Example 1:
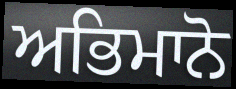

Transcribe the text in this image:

ਅਭਿਮਾਨੋ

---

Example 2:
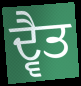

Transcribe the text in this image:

ਦ੍ਵੈਤ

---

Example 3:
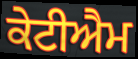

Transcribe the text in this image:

ਕੇਟੀਐਮ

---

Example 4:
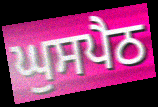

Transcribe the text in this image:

ਘੁਸਪੈਠ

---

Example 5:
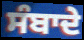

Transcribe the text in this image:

ਸੰਬਾਦੇ